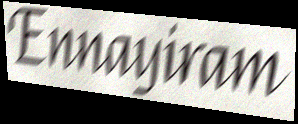
Ennayiram